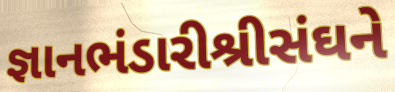
જ્ઞાનભંડારીશ્રીસંઘને